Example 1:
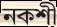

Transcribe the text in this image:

নকশী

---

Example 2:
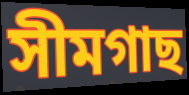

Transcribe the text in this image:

সীমগাছ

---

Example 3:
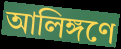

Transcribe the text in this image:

আলিঙ্গণে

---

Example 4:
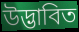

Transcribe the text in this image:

উদ্ভাবিত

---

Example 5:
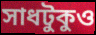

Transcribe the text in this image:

সাধটুকুও